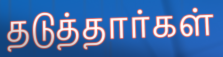
தடுத்தார்கள்